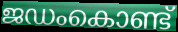
ജഡംകൊണ്ട്